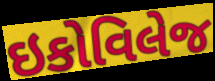
ઇકોવિલેજ